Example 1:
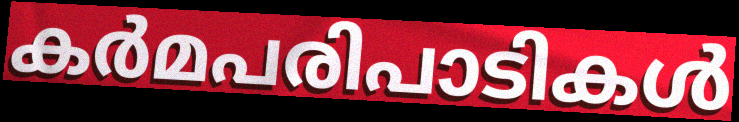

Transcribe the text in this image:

കർമപരിപാടികൾ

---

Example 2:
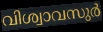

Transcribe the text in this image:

വിശ്വാവസുർ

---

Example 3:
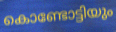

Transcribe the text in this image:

കൊണ്ടോട്ടിയും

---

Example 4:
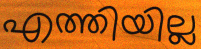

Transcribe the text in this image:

എത്തിയില്ല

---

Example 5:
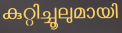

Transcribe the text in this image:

കുറ്റിച്ചൂലുമായി